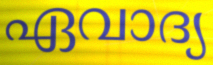
ഏവാദ്യ